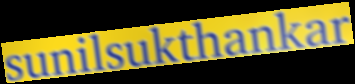
sunilsukthankar